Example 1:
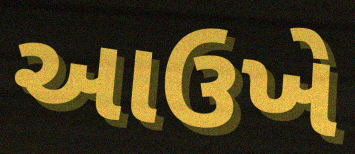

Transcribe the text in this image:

આઉખે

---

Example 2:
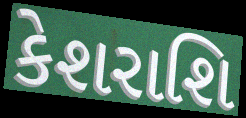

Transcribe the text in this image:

કેશરાશિ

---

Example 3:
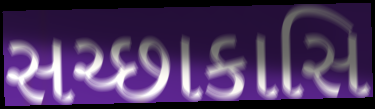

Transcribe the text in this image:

સચ્છાકાસિ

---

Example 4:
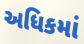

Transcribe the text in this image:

અધિકમાં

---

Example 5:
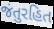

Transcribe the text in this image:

જંતુરહિત